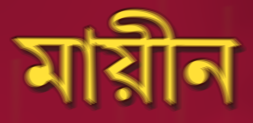
মায়ীন